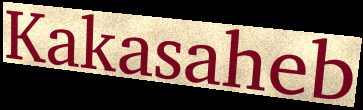
Kakasaheb